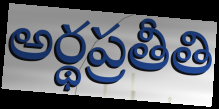
అర్థప్రతీతి